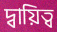
দ্বায়িত্ব